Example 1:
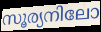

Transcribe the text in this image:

സൂര്യനിലോ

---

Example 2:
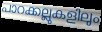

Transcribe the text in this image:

പാറക്കല്ലുകളിലും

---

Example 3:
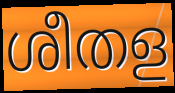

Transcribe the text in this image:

ശീതള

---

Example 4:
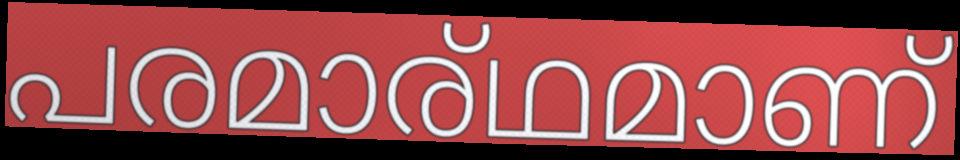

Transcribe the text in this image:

പരമാര്ഥമാണ്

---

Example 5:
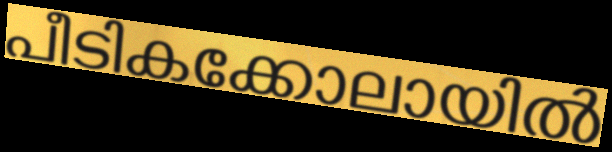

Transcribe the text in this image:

പീടികക്കോലായിൽ